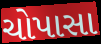
ચોપાસા